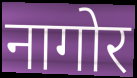
नागोर